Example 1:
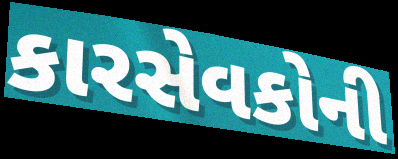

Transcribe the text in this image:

કારસેવકોની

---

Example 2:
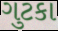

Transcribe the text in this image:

ગુટકા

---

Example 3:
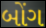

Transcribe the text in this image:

બોંગ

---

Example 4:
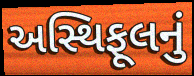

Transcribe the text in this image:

અસ્થિફૂલનું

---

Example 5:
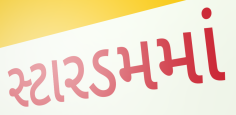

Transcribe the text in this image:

સ્ટારડમમાં